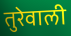
तुरेवाली